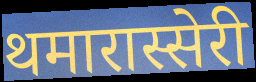
थमारास्सेरी